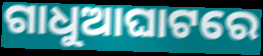
ଗାଧୁଆଘାଟରେ